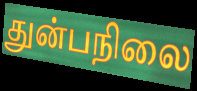
துன்பநிலை